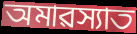
অমাৱস্যাত